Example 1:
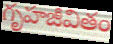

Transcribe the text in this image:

గృహజీవితం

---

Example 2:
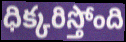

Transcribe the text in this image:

ధిక్కరిస్తోంది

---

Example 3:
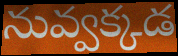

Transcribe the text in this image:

నువ్వక్కడ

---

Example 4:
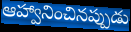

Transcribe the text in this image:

ఆహ్వానించినప్పుడు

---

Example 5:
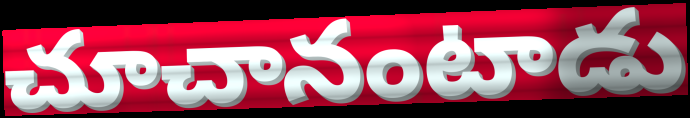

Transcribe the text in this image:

చూచానంటాడు